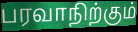
பரவாநிற்கும்